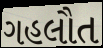
ગહલૌત